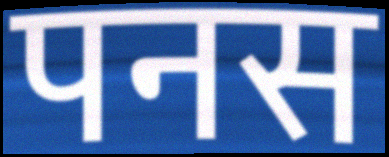
पनस